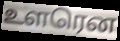
உளரென